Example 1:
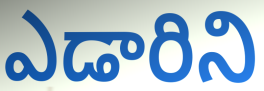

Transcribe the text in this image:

ఎడారిని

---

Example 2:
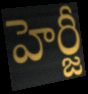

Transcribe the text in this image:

హెర్జీ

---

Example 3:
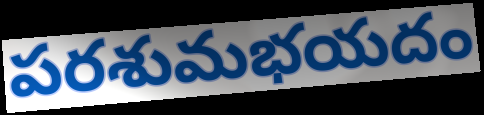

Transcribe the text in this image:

పరశుమభయదం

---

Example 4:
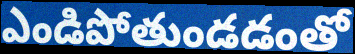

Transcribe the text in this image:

ఎండిపోతుండడంతో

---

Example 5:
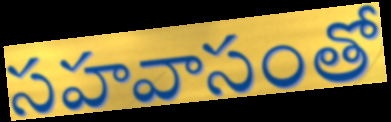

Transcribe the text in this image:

సహవాసంతో